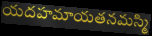
యదహమాయతనమస్మి